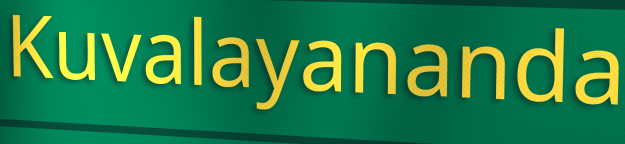
Kuvalayananda